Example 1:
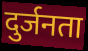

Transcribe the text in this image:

दुर्जनता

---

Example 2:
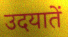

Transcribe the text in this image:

उदयातें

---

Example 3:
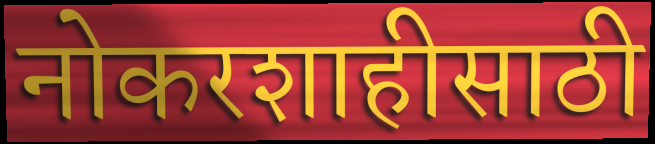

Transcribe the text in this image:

नोकरशाहीसाठी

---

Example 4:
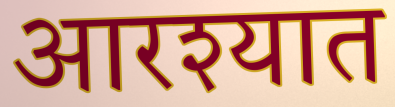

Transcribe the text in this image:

आरश्यात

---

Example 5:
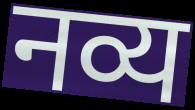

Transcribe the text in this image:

नव्य